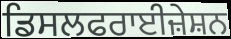
ਡਿਸਲਫਰਾਈਜ਼ੇਸ਼ਨ